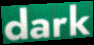
dark